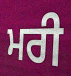
ਮਰੀ